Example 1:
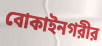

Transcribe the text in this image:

বোকাইনগরীর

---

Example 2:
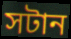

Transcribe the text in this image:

সটান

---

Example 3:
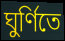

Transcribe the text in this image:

ঘুর্ণিতে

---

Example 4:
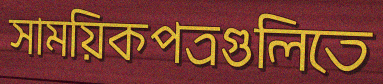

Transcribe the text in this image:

সাময়িকপত্রগুলিতে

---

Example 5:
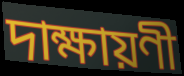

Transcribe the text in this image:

দাক্ষায়ণী